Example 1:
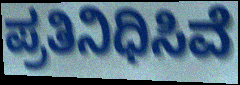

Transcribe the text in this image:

ಪ್ರತಿನಿಧಿಸಿವೆ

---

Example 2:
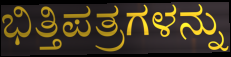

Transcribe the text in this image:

ಭಿತ್ತಿಪತ್ರಗಳನ್ನು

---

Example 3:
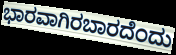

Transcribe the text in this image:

ಭಾರವಾಗಿರಬಾರದೆಂದು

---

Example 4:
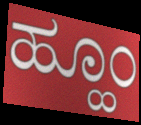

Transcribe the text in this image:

ಹ್ಹೂಂ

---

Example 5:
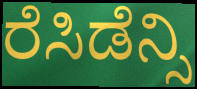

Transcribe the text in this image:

ರೆಸಿಡೆನ್ಸಿ